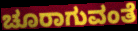
ಚೂರಾಗುವಂತೆ